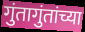
गुंतागुंतांच्या